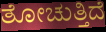
ತೋಚುತ್ತಿದೆ